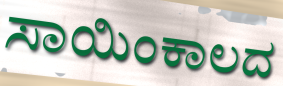
ಸಾಯಿಂಕಾಲದ